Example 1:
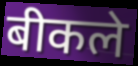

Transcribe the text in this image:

बीकले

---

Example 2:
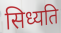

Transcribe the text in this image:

सिध्यति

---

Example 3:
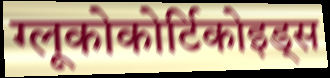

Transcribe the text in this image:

ग्लूकोकोर्टिकोइड्स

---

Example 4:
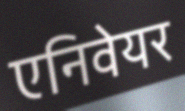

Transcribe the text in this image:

एनिवेयर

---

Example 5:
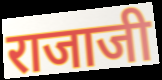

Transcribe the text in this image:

राजाजी